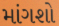
માંગશો